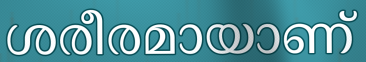
ശരീരമായാണ്